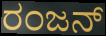
ರಂಜನ್